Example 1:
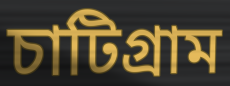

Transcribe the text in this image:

চাটিগ্রাম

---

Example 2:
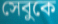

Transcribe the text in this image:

সেবুকে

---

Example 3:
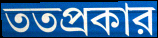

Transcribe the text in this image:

ততপ্রকার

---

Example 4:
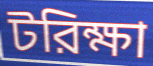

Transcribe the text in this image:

টরিক্ষা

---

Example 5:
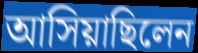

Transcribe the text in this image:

আসিয়াছিলেন